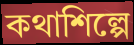
কথাশিল্পে